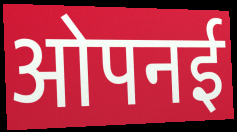
ओपनई